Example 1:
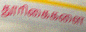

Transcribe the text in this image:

தூரிகைகளை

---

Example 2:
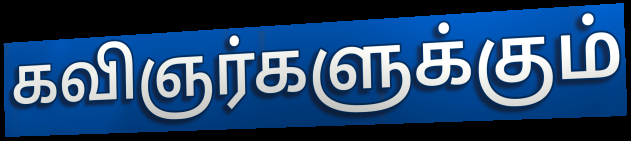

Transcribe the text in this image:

கவிஞர்களுக்கும்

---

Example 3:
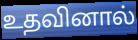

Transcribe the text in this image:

உதவினால்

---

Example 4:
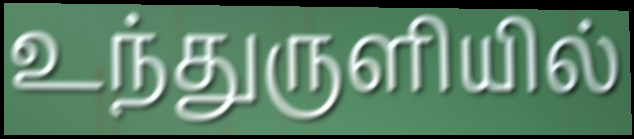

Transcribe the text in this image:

உந்துருளியில்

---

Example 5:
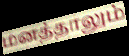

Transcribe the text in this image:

மனத்தாலும்